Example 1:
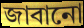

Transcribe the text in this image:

জাবানো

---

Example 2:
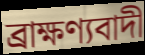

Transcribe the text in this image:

ব্রাক্ষণ্যবাদী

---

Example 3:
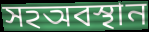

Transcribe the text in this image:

সহঅবস্থান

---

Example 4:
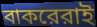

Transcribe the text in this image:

বাকরেরাই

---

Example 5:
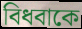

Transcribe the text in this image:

বিধবাকে